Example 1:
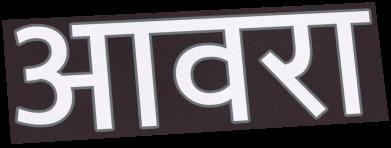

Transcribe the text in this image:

आवरा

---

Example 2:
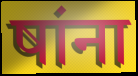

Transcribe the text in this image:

षांना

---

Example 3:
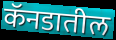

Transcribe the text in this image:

कॅनडातील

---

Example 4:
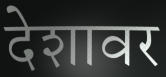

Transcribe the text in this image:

देशावर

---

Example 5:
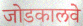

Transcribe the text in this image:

जोडकालवे